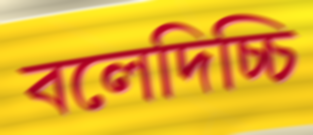
বলেদিচ্চি